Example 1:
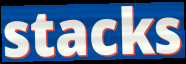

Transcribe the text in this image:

stacks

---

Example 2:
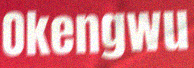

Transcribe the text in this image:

Okengwu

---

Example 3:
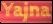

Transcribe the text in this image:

Yajna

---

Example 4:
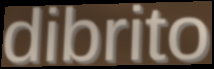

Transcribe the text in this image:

dibrito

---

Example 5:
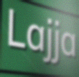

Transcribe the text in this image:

Lajja